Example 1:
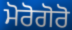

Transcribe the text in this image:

ਮੋਰੋਗੋਰੋ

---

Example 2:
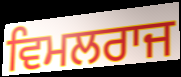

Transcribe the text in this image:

ਵਿਮਲਰਾਜ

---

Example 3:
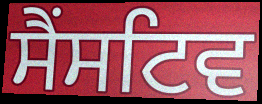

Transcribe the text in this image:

ਸੈਂਸਟਿਵ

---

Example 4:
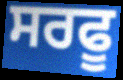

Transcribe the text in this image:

ਸਰਫੂ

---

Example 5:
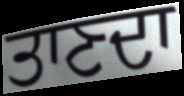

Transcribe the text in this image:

ਤਾਣਦਾ